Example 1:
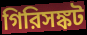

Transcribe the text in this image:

গিরিসঙ্কট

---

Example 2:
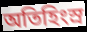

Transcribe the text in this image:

অতিহিংস্র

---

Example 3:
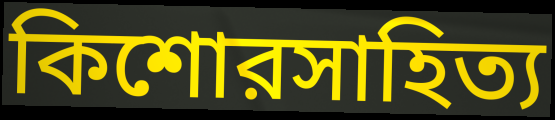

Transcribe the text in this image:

কিশোরসাহিত্য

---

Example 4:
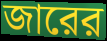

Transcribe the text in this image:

জারের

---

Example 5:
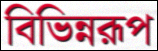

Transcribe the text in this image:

বিভিন্নরূপ